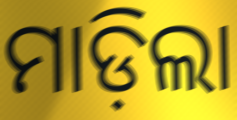
ମାଡ଼ିଲା